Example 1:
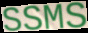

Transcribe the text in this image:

SSMS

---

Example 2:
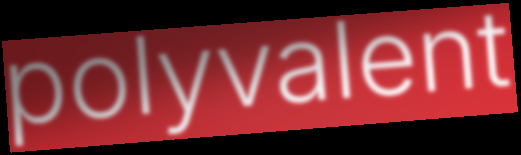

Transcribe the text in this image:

polyvalent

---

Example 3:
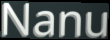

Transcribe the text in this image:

Nanu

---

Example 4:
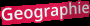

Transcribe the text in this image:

Geographie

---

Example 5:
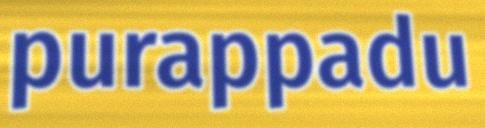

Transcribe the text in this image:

purappadu